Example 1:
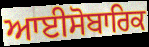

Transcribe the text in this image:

ਆਈਸੋਬਾਰਿਕ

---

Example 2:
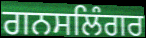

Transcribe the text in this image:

ਗਨਸਲਿੰਗਰ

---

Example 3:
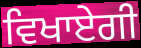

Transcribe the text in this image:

ਵਿਖਾਏਗੀ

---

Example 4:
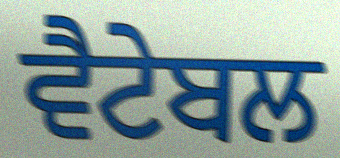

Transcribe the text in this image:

ਵੈਟੇਬਲ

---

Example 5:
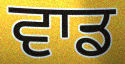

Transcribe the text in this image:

ਵਾਡ